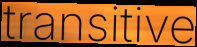
transitive